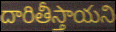
దారితీస్తాయని